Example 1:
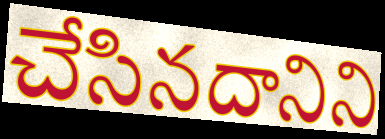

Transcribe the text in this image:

చేసినదానిని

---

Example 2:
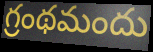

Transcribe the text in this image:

గ్రంథమందు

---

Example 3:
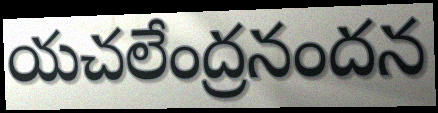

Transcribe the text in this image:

యచలేంద్రనందన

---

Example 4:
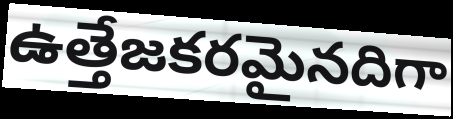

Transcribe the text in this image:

ఉత్తేజకరమైనదిగా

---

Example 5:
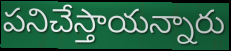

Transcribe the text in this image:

పనిచేస్తాయన్నారు